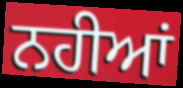
ਨਹੀਆਂ